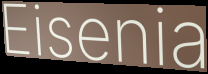
Eisenia